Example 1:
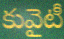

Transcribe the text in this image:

కువైటీ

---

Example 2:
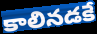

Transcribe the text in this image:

కాలినడకే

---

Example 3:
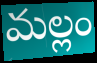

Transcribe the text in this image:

మల్లం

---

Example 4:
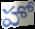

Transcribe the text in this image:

హో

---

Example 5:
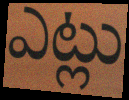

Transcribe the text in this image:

ఎట్లు